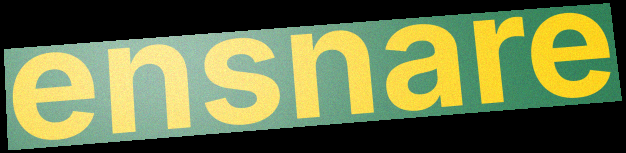
ensnare